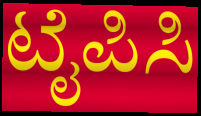
ಟೈಪಿಸಿ